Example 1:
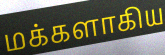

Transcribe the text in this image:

மக்களாகிய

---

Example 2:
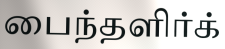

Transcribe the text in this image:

பைந்தளிர்க்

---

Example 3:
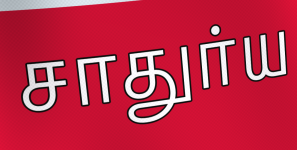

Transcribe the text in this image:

சாதுர்ய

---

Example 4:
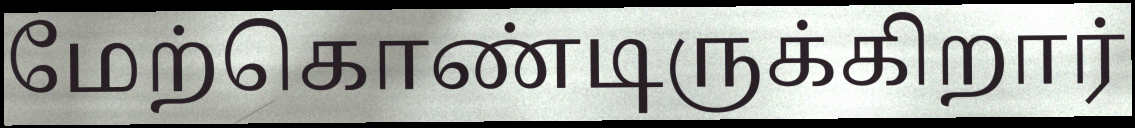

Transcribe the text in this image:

மேற்கொண்டிருக்கிறார்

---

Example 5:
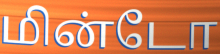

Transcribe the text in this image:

மின்டோ